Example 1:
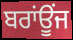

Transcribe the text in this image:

ਬਰਾਂਊਂਜ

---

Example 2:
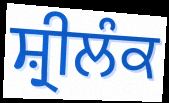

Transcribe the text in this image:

ਸ਼੍ਰੀਲੰਕ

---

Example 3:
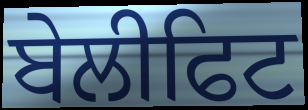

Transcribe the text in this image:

ਬੇਲੀਫਿਟ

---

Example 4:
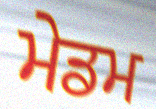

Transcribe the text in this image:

ਮੇਡਮ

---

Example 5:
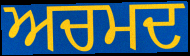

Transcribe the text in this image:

ਅਚਮਦ